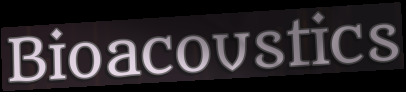
Bioacoustics